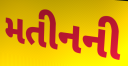
મતીનની